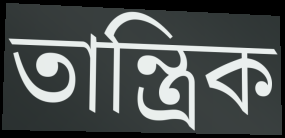
তান্ত্রিক